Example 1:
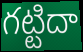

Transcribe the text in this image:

గట్టిదా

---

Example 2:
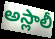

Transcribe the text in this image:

అస్లాలీ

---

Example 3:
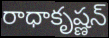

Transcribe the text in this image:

రాధాకృష్ణన్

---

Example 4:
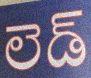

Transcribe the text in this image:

లెడ్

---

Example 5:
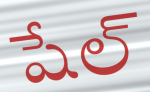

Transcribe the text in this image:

షేల్